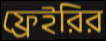
ফ্রেইরির